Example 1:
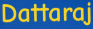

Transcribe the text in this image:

Dattaraj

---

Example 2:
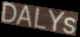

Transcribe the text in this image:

DALYs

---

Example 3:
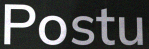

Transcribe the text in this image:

Postu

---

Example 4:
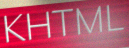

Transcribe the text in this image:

KHTML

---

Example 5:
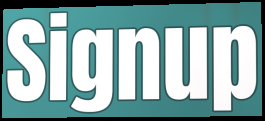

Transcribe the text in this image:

Signup